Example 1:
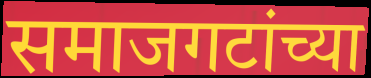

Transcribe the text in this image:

समाजगटांच्या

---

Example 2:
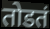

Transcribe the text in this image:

तोडतं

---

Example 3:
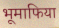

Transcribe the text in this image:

भूमाफिया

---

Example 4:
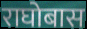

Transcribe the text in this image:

राघोबास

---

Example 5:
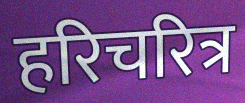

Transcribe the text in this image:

हरिचरित्र